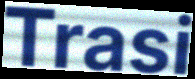
Trasi